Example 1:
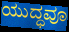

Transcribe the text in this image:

ಯುದ್ಧವೂ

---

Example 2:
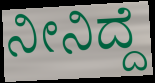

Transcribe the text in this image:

ನೀನಿದ್ದೆ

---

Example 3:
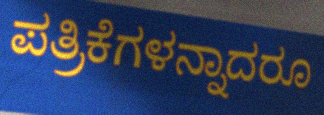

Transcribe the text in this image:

ಪತ್ರಿಕೆಗಳನ್ನಾದರೂ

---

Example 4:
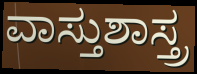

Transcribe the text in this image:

ವಾಸ್ತುಶಾಸ್ತ್ರ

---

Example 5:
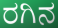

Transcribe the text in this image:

ರಗಿನ